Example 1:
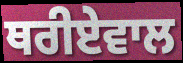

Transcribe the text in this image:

ਥਰੀਏਵਾਲ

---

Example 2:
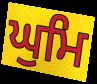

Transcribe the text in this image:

ਘੁਮਿ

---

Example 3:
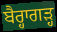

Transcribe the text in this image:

ਬੈਰ੍ਹਾਗੜ੍ਹ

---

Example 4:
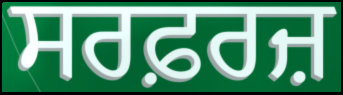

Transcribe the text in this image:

ਸਰਫ਼ਰਜ਼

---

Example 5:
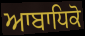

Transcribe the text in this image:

ਆਬਾਧਿਕੋ